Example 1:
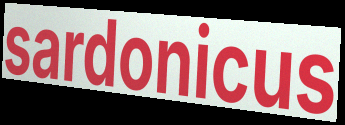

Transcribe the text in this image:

sardonicus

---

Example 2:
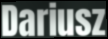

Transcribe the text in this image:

Dariusz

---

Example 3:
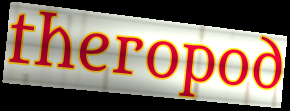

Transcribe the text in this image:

theropod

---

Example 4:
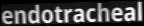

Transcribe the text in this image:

endotracheal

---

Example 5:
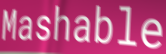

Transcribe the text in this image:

Mashable